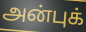
அன்புக்